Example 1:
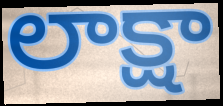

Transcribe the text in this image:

లాక్షా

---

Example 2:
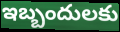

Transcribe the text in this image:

ఇబ్బందులకు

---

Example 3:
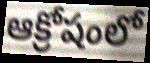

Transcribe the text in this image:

ఆక్రోషంలో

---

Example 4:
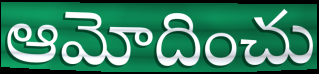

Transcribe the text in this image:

ఆమోదించు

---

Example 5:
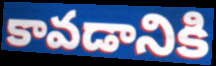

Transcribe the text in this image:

కావడానికి